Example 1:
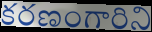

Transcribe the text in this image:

కరణంగారిని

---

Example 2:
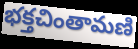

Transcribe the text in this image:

భక్తచింతామణి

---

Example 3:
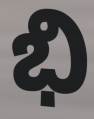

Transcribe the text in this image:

భి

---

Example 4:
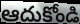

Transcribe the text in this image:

ఆదుకోండి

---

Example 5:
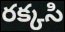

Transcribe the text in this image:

రక్కసి